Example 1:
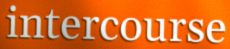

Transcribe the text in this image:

intercourse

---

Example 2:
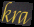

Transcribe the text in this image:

kra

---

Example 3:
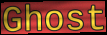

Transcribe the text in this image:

Ghost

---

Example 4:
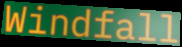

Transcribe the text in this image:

Windfall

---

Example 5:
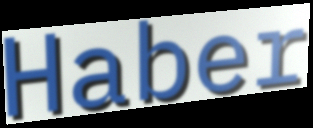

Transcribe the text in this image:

Haber